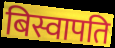
बिस्वापति